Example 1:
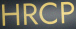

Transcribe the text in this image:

HRCP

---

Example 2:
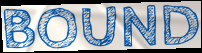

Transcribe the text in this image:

BOUND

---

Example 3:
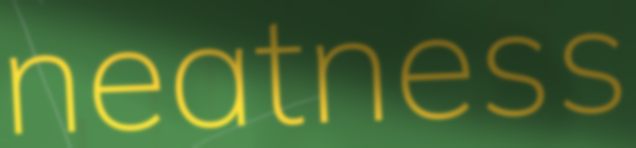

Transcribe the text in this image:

neatness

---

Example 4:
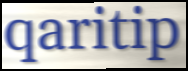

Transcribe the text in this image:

qaritip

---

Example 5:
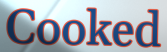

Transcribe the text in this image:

Cooked